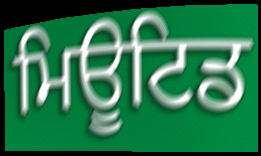
ਮਿਊਟਿਡ